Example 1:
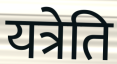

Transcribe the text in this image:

यत्रेति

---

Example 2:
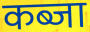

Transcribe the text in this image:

कब्जा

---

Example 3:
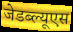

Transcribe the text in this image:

जेडब्ल्यूएस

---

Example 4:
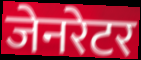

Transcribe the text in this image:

जेनरेटर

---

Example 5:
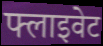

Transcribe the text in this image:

फ्लाइवेट